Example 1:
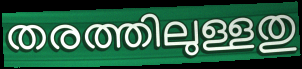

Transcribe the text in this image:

തരത്തിലുള്ളതു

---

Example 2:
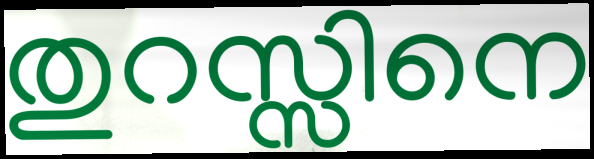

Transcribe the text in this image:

തുറസ്സിനെ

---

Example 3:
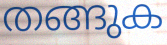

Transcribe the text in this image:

തങ്ങുക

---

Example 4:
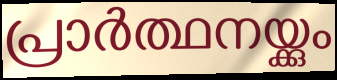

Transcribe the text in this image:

പ്രാർത്ഥനയ്ക്കും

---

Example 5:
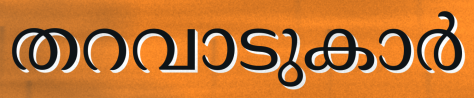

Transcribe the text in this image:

തറവാടുകാർ